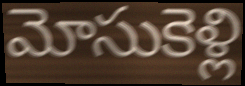
మోసుకెళ్లి